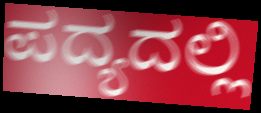
ಪದ್ಯದಲ್ಲಿ